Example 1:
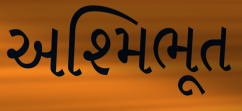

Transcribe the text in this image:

અશ્મિભૂત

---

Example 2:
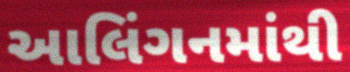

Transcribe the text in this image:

આલિંગનમાંથી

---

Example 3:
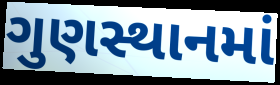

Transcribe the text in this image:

ગુણસ્થાનમાં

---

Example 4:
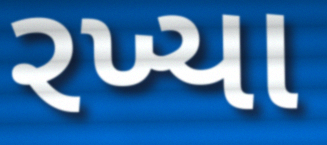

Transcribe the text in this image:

રખ્યા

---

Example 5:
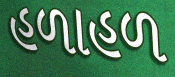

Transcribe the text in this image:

હળાહળ